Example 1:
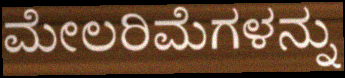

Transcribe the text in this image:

ಮೇಲರಿಮೆಗಳನ್ನು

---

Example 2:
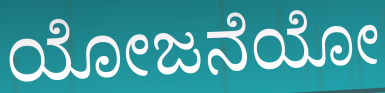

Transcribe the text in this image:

ಯೋಜನೆಯೋ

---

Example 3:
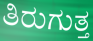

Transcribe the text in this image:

ತಿರುಗುತ್ತ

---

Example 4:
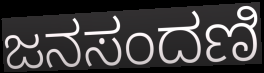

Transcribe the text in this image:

ಜನಸಂದಣಿ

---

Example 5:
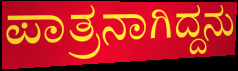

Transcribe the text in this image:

ಪಾತ್ರನಾಗಿದ್ದನು